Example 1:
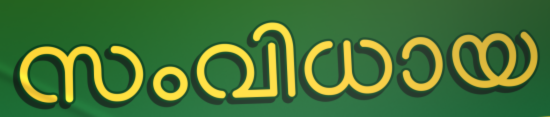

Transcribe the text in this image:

സംവിധായ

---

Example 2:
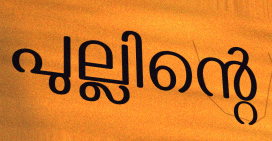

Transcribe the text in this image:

പുല്ലിന്റെ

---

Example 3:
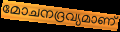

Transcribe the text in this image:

മോചനദ്രവ്യമാണ്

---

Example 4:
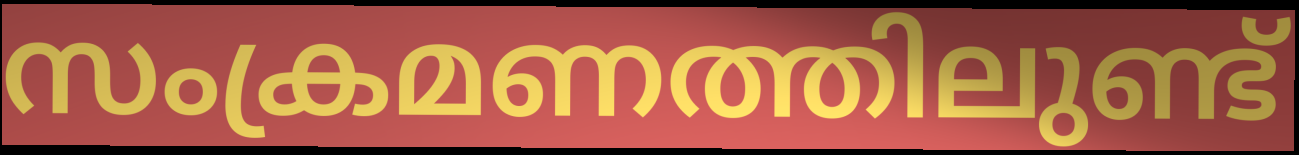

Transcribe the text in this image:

സംക്രമണത്തിലുണ്ട്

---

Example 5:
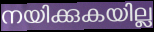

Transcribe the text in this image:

നയിക്കുകയില്ല